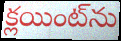
క్లయింట్‌ను